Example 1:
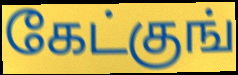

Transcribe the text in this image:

கேட்குங்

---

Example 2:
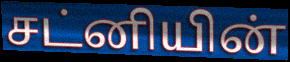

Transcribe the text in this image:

சட்னியின்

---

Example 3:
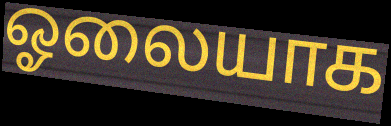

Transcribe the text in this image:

ஓலையாக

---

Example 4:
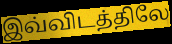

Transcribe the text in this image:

இவ்விடத்திலே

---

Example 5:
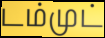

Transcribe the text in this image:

டம்முட்